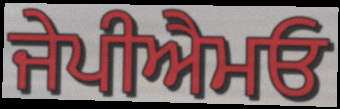
ਜੇਪੀਐਮਓ